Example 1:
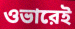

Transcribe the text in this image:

ওভারেই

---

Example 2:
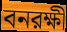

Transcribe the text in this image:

বনরক্ষী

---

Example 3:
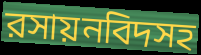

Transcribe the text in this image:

রসায়নবিদসহ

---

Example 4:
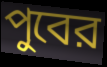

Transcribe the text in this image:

পুবের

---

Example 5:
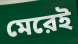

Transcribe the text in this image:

মেরেই